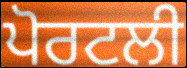
ਪੋਰਟਲੀ